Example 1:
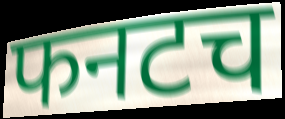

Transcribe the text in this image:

फनटच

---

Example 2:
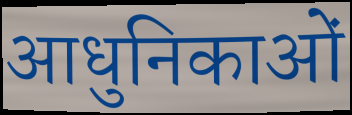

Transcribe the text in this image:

आधुनिकाओं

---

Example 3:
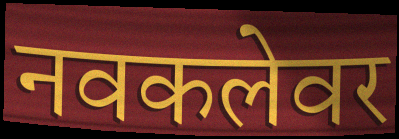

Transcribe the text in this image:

नवकलेवर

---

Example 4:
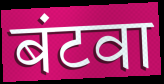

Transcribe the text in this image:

बंटवा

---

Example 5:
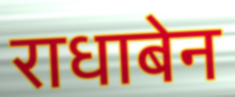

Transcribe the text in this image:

राधाबेन